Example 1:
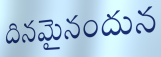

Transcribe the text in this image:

దినమైనందున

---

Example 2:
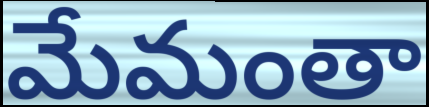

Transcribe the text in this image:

మేమంతా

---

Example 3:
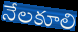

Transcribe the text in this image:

నేలకూలి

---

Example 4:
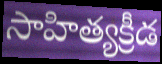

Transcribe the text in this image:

సాహిత్యక్రీడ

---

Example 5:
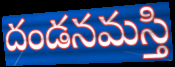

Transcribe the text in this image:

దండనమస్తి